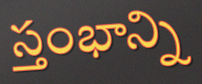
స్తంభాన్ని